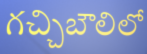
గచ్చిబౌలిలో